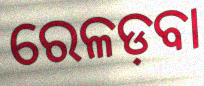
ରେଳଡ଼ବା